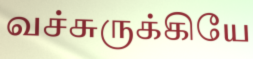
வச்சுருக்கியே